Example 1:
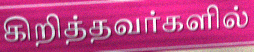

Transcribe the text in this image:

கிறித்தவர்களில்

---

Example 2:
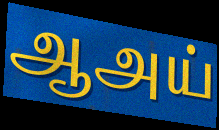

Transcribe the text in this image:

ஆஅய்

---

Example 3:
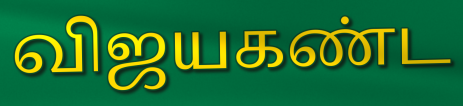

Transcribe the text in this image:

விஜயகண்ட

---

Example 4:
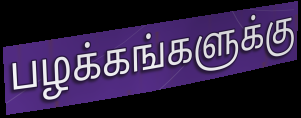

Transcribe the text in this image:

பழக்கங்களுக்கு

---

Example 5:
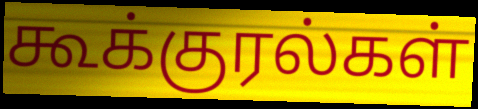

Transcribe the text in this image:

கூக்குரல்கள்